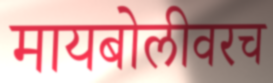
मायबोलीवरच